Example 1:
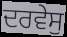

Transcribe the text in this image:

ਦਰਵੇਸੁ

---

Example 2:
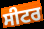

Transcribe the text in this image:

ਸੀਟਰ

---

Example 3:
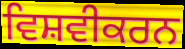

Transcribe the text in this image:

ਵਿਸ਼ਵੀਕਰਨ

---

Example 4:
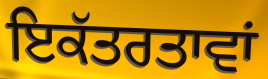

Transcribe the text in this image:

ਇਕੱਤਰਤਾਵਾਂ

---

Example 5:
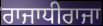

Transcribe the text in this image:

ਰਾਜਾਧੀਰਾਜਾ